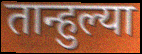
तान्हुल्या